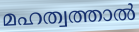
മഹത്വത്താൽ